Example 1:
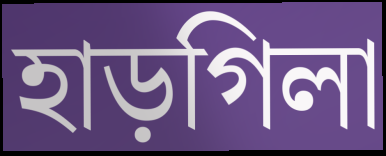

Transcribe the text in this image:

হাড়গিলা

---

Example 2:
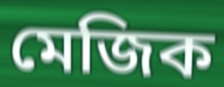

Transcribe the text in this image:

মেজিক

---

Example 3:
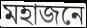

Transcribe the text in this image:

মহাজনে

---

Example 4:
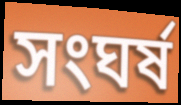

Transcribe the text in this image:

সংঘৰ্ষ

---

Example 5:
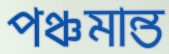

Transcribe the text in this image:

পঞ্চমান্ত